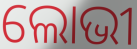
ଲୋଭୀ